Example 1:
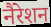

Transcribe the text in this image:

नैरेशन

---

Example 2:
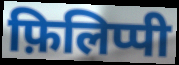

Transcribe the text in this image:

फ़िलिप्पी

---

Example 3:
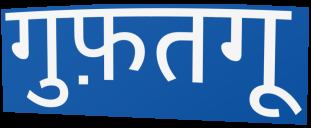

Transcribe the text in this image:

गुफ़तगू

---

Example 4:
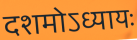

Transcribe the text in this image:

दशमोऽध्यायः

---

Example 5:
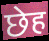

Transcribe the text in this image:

छेह